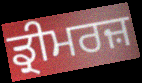
ਡ੍ਰੀਮਰਜ਼